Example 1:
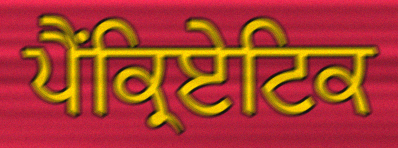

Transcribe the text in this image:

ਪੈਂਕ੍ਰਿਏਟਿਕ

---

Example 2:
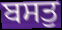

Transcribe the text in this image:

ਬਸਤੁ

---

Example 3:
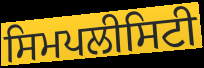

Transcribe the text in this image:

ਸਿਮਪਲੀਸਿਟੀ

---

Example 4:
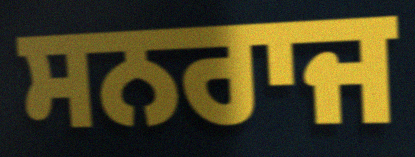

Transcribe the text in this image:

ਸਨਰਾਜ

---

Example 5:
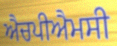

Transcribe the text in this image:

ਐਚਪੀਐਮਸੀ